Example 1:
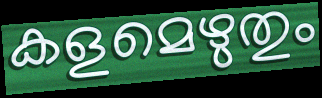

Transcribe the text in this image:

കളമെഴുതും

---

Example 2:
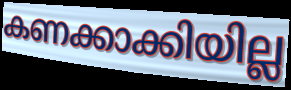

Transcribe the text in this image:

കണക്കാക്കിയില്ല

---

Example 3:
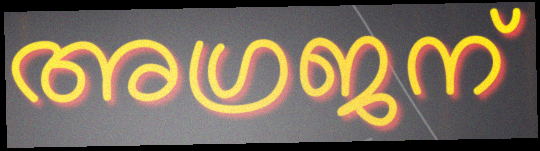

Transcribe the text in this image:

അഗ്രജന്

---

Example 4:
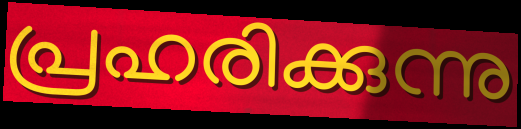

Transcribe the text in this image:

പ്രഹരിക്കുന്നു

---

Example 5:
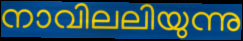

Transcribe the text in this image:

നാവിലലിയുന്നു